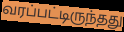
வரப்பட்டிருந்தது